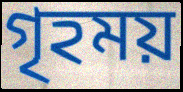
গৃহময়